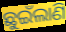
ଛୁଇଁଲାଣି